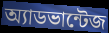
অ্যাডভান্টেজ